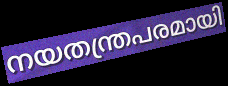
നയതന്ത്രപരമായി